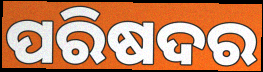
ପରିଷଦର